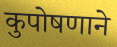
कुपोषणाने